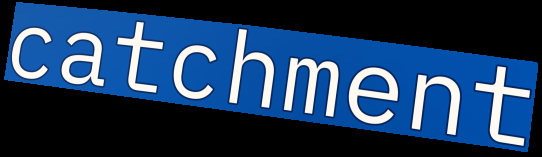
catchment